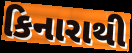
કિનારાથી